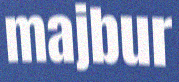
majbur